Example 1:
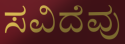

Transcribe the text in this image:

ಸವಿದೆವು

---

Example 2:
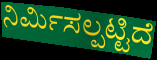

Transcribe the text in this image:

ನಿರ್ಮಿಸಲ್ಪಟ್ಟಿದೆ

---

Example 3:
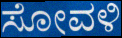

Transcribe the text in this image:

ಸೋವಳಿ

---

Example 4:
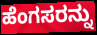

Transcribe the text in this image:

ಹೆಂಗಸರನ್ನು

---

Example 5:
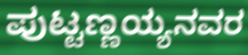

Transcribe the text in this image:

ಪುಟ್ಟಣ್ಣಯ್ಯನವರ